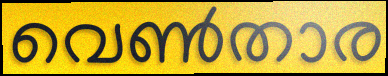
വെൺതാര